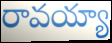
రావయ్యా